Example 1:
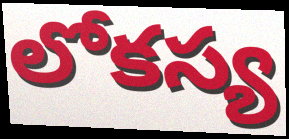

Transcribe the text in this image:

లోకస్య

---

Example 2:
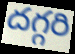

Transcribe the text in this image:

దగ్గరి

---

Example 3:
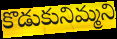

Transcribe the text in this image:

కొడుకునిమ్మని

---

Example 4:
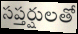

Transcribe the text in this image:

సప్తర్షులతో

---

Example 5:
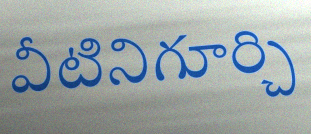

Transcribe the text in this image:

వీటినిగూర్చి